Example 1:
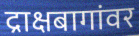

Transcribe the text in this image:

द्राक्षबागांवर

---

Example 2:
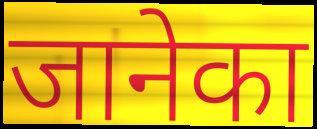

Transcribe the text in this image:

जानेका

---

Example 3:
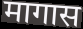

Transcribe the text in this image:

मागास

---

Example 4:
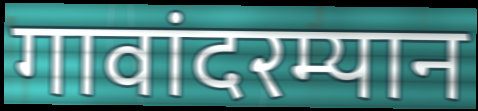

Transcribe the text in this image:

गावांदरम्यान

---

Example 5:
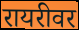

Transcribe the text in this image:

रायरीवर